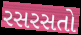
રસરસતો